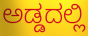
ಅಡ್ಡದಲ್ಲಿ